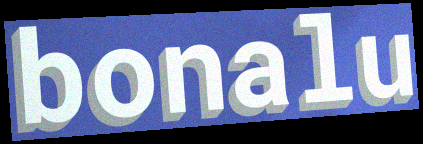
bonalu